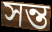
সন্ত